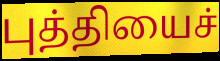
புத்தியைச்